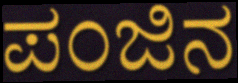
ಪಂಜಿನ